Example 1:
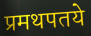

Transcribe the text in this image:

प्रमथपतये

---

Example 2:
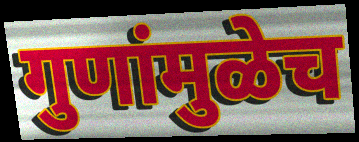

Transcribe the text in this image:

गुणांमुळेच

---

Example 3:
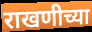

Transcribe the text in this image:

राखणीच्या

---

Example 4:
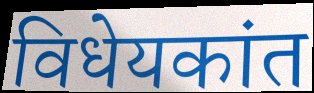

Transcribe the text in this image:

विधेयकांत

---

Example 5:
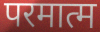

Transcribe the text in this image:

परमात्म